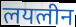
लयलीन